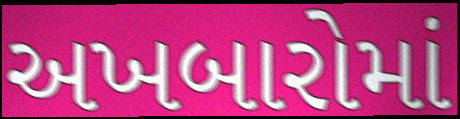
અખબારોમાં